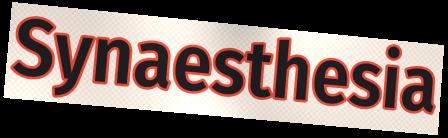
Synaesthesia